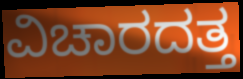
ವಿಚಾರದತ್ತ